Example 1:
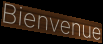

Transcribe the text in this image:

Bienvenue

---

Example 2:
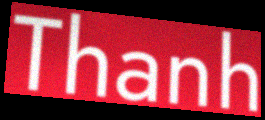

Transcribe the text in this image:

Thanh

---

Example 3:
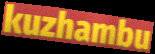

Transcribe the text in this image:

kuzhambu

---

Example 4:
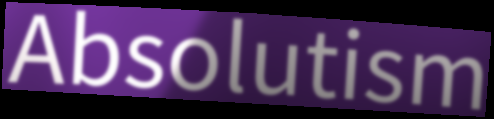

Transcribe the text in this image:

Absolutism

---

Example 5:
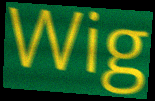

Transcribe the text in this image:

Wig